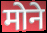
मोने